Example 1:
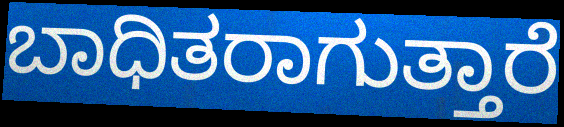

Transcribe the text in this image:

ಬಾಧಿತರಾಗುತ್ತಾರೆ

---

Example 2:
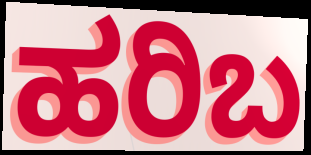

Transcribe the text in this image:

ಹರಿಬ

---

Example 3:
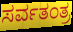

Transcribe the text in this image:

ಸರ್ವತಂತ್ರ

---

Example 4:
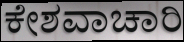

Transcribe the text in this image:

ಕೇಶವಾಚಾರಿ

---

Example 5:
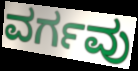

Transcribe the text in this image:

ವರ್ಗವು